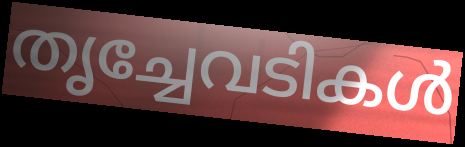
തൃച്ചേവടികൾ